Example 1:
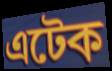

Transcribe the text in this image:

এটেক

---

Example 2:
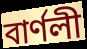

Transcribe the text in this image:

বাৰ্ণলী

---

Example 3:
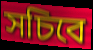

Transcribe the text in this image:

সচিবে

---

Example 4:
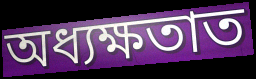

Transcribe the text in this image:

অধ্যক্ষতাত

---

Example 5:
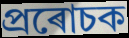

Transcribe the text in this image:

প্ৰৰোচক